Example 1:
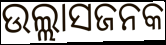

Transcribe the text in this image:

ଉଲ୍ଲାସଜନକ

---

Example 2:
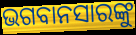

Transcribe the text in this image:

ଭଗବାନସାରଙ୍କୁ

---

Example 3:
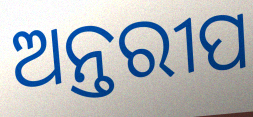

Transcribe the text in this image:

ଅନ୍ତରୀପ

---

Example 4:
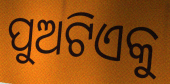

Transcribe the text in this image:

ପୁଅଟିଏକୁ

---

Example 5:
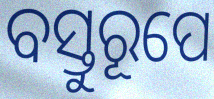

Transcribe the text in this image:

ବସ୍ତୁରୂପେ